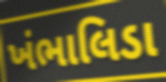
ખંભાલિડા